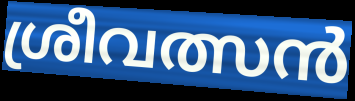
ശ്രീവത്സൻ